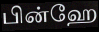
பின்ஹே